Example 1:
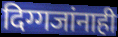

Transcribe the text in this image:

दिग्गजांनाही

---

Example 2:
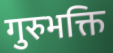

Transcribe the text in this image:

गुरुभक्ति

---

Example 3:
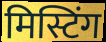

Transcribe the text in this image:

मिस्टिंग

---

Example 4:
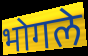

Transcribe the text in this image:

भोगले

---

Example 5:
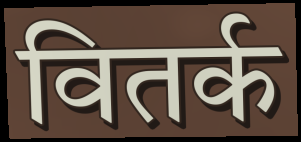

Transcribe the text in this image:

वितर्क